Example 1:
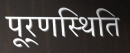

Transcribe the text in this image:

पूर्णस्थिति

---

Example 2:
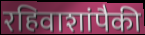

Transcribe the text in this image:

रहिवाशांपैकी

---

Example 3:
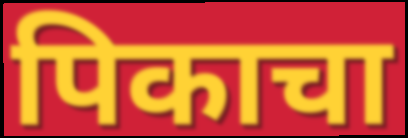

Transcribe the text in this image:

पिकाचा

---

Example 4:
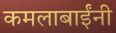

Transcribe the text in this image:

कमलाबाईंनी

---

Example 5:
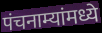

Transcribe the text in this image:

पंचनाम्यांमध्ये